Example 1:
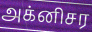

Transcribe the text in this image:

அக்னிசர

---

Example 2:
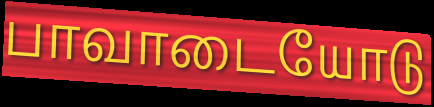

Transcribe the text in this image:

பாவாடையோடு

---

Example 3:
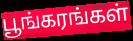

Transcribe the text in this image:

பூங்கரங்கள்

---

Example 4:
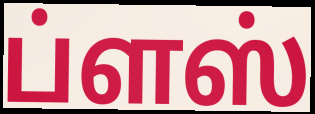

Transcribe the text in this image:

ப்ளஸ்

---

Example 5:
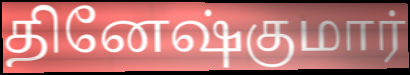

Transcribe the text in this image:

தினேஷ்குமார்